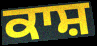
ਕਾਸ਼